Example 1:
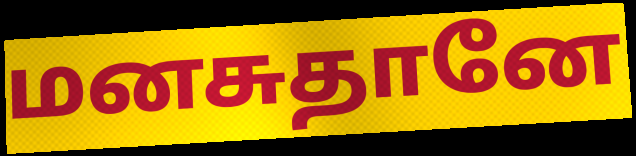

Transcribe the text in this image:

மனசுதானே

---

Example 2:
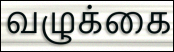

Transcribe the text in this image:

வழுக்கை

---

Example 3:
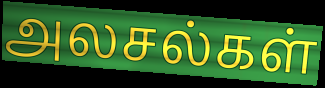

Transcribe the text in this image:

அலசல்கள்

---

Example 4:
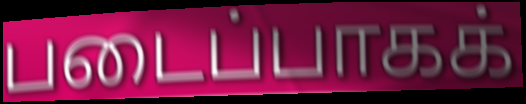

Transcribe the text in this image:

படைப்பாகக்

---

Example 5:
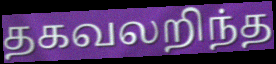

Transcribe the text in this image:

தகவலறிந்த